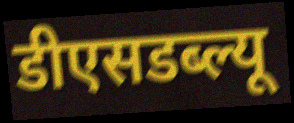
डीएसडब्ल्यू